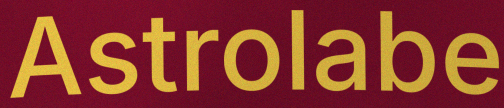
Astrolabe